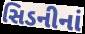
સિડનીનાં